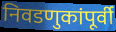
निवडणुकांपूर्वी